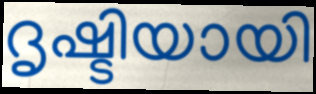
ദൃഷ്ടിയായി